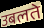
उबलते